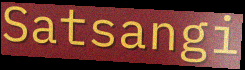
Satsangi